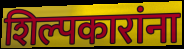
शिल्पकारांना